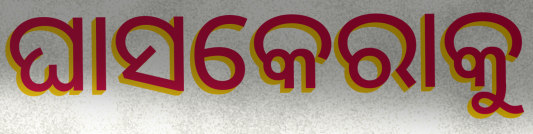
ଘାସକେରାକୁ